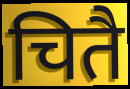
चितै